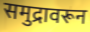
समुद्रावरून